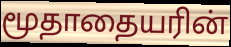
மூதாதையரின்